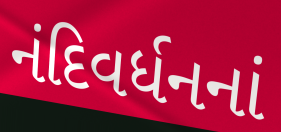
નંદિવર્ધનનાં